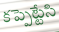
కప్పెట్టేసి